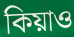
কিয়াও